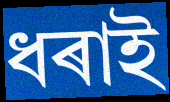
ধৰাই